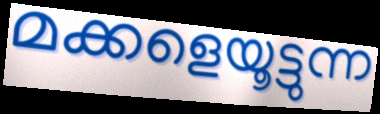
മക്കളെയൂട്ടുന്ന